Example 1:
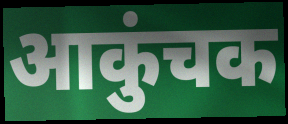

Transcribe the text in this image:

आकुंचक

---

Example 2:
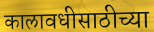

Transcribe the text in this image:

कालावधीसाठीच्या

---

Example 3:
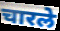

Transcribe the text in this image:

चारले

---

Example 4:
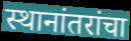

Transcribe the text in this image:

स्थानांतरांचा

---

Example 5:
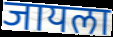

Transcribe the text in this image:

जायला